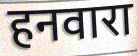
हनवारा